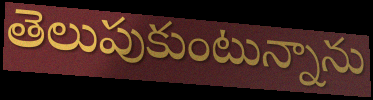
తెలుపుకుంటున్నాను